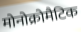
मोनोक्रोमैटिक